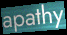
apathy